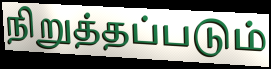
நிறுத்தப்படும்